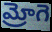
మ్రోగె